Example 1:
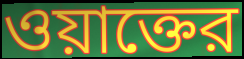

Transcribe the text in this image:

ওয়াক্তের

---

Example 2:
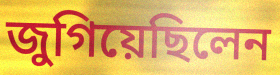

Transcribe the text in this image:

জুগিয়েছিলেন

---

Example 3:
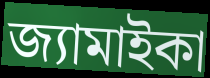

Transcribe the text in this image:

জ্যামাইকা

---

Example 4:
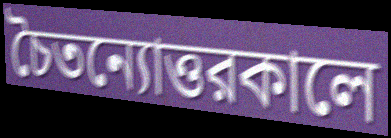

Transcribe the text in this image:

চৈতন্যোত্তরকালে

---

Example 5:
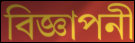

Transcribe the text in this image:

বিজ্ঞাপনী